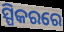
ସ୍ପିକରରେ